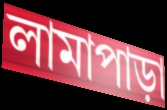
লামাপাড়া